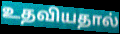
உதவியதால்